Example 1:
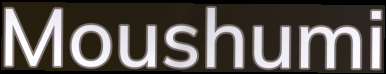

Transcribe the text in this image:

Moushumi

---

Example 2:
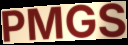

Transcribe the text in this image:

PMGS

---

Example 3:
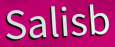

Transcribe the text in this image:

Salisb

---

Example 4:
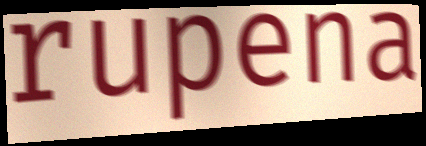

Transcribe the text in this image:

rupena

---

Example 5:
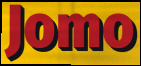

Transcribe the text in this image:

Jomo